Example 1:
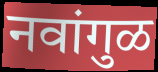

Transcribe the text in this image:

नवांगुळ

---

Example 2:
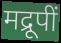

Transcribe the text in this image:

मद्रूपीं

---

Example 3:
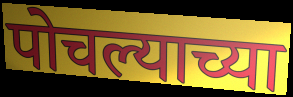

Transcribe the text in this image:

पोचल्याच्या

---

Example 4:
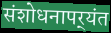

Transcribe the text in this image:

संशोधनापर्यंत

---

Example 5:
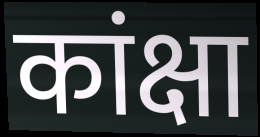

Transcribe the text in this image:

कांक्षा